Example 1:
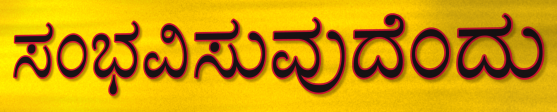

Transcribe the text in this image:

ಸಂಭವಿಸುವುದೆಂದು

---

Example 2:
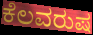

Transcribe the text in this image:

ಕೆಲವರುಷ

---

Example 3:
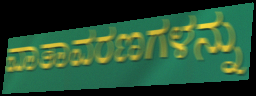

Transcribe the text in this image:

ವಾತಾವರಣಗಳನ್ನು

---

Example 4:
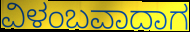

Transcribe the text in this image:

ವಿಳಂಬವಾದಾಗ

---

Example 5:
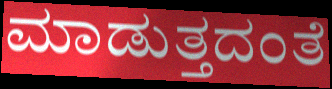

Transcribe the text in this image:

ಮಾಡುತ್ತದಂತೆ